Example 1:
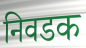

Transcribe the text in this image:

निवडक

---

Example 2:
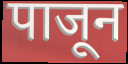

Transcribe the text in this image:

पाजून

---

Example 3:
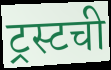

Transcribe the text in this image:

ट्रस्टची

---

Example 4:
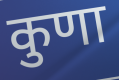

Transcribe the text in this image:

कुणा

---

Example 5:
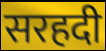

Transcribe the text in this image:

सरहदी